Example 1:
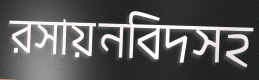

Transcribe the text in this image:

রসায়নবিদসহ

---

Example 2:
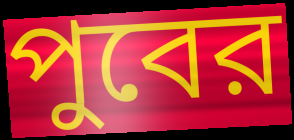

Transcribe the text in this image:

পুবের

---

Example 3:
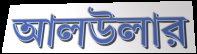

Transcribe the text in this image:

আলউলার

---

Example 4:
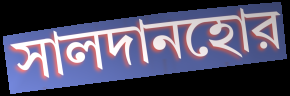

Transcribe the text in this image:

সালদানহোর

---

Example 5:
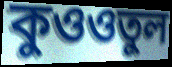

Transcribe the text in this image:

কুওওতুল